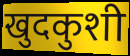
खुदकुशी